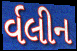
ર્વલીન